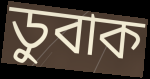
ডুবাক